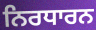
ਨਿਰਧਾਰਨ